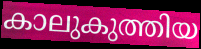
കാലുകുത്തിയ